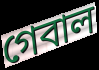
গেবাল